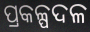
ପ୍ରକଳ୍ପଦଳ